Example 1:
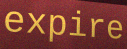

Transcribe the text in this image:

expire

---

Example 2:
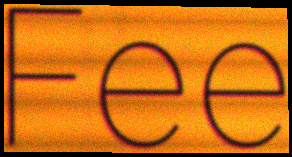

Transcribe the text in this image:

Fee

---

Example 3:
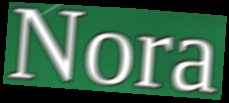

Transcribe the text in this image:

Nora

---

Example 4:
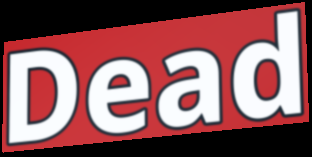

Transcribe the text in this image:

Dead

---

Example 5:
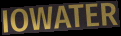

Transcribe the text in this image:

IOWATER